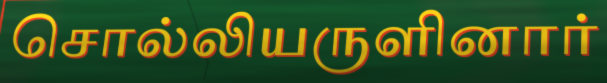
சொல்லியருளினார்